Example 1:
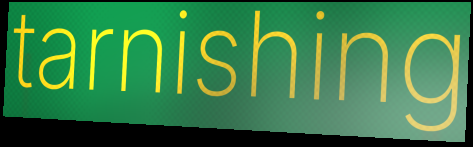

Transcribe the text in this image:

tarnishing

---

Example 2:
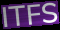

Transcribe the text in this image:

ITFS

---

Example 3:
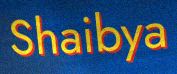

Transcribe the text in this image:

Shaibya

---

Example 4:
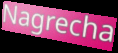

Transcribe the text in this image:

Nagrecha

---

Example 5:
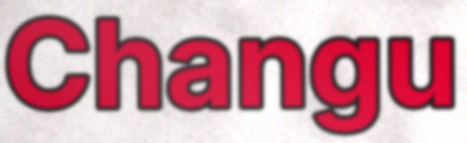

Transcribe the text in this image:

Changu